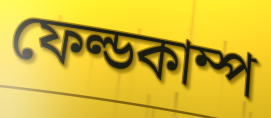
ফেল্ডকাম্প